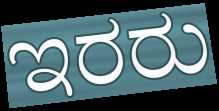
ಇರರು